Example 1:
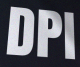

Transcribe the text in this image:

DPI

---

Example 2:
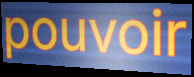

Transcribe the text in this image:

pouvoir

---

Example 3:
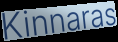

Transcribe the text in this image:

Kinnaras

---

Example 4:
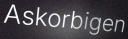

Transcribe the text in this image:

Askorbigen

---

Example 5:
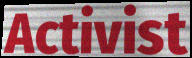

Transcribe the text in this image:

Activist